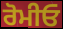
ਰੋਮੀਓ